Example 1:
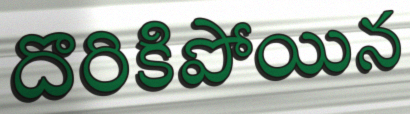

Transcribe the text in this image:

దొరికిపోయిన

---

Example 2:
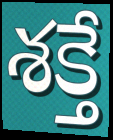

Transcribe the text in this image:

శక్తే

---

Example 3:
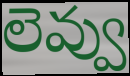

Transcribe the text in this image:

లెవ్వు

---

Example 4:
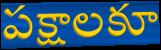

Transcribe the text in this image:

పక్షాలకూ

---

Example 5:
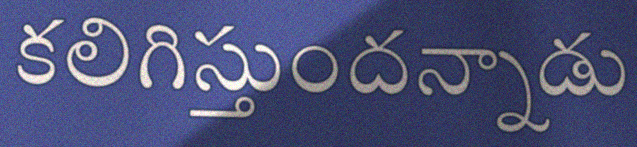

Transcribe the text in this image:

కలిగిస్తుందన్నాడు